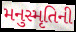
મનુસ્મૃતિની